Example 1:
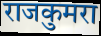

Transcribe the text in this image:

राजकुमरा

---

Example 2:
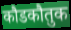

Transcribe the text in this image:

कौडकौतुक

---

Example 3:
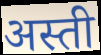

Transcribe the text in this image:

अस्ती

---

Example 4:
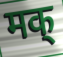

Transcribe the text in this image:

मक्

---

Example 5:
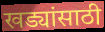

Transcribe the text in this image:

खड्यांसाठी